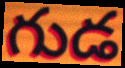
గుడ